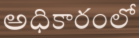
అధికారంలో